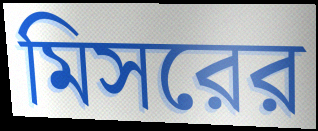
মিসরের